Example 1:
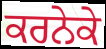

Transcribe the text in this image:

ਕਰਨੇਕੇ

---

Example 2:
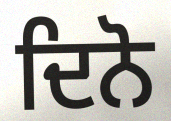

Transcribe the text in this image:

ਦਿਨੋ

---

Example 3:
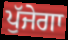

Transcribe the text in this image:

ਪੁੱਜੇਗਾ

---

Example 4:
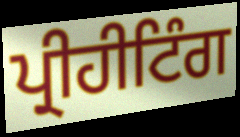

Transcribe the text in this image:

ਪ੍ਰੀਹੀਟਿੰਗ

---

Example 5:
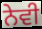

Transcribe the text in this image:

ਨੇਵੀ